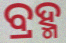
ବ୍ରହ୍ମ